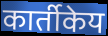
कार्तीकेय